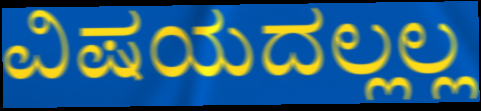
ವಿಷಯದಲ್ಲಲ್ಲ